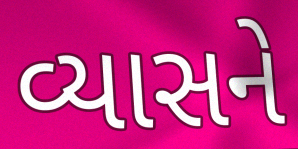
વ્યાસને